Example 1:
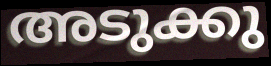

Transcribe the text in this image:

അടുക്കു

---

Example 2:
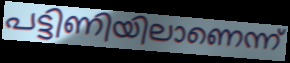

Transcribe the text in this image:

പട്ടിണിയിലാണെന്ന്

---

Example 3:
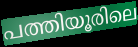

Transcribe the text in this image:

പത്തിയൂരിലെ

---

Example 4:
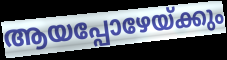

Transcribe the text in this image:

ആയപ്പോഴേയ്ക്കും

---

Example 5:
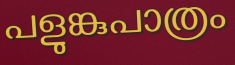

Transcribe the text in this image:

പളുങ്കുപാത്രം